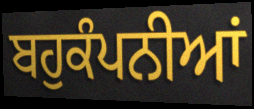
ਬਹੁਕੰਪਨੀਆਂ